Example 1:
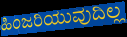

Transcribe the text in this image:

ಹಿಂಜರಿಯುವುದಿಲ್ಲ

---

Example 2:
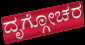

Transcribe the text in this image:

ದೃಗ್ಗೋಚರ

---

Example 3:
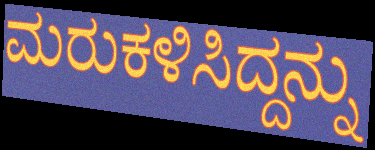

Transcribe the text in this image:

ಮರುಕಳಿಸಿದ್ದನ್ನು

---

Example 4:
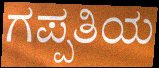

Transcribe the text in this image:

ಗಪ್ಪತಿಯ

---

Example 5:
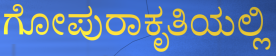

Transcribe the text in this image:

ಗೋಪುರಾಕೃತಿಯಲ್ಲಿ